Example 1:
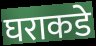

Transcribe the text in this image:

घराकडे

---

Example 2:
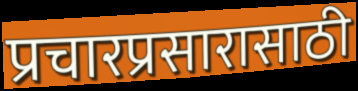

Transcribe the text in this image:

प्रचारप्रसारासाठी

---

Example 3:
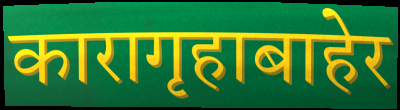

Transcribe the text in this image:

कारागृहाबाहेर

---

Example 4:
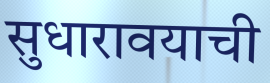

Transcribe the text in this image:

सुधारावयाची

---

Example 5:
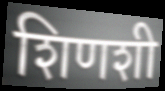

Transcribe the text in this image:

शिणशी